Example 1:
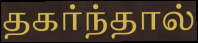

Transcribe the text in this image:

தகர்ந்தால்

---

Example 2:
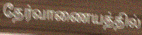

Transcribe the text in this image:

தேர்வாணையத்தில்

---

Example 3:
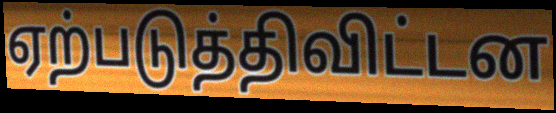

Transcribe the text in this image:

ஏற்படுத்திவிட்டன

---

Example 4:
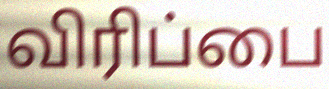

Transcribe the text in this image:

விரிப்பை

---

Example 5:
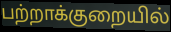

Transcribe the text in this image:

பற்றாக்குறையில்